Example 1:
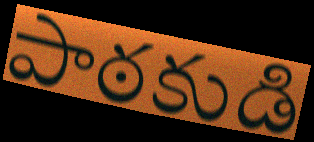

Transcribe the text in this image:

పాఠకుడి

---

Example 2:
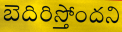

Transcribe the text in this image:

బెదిరిస్తోందని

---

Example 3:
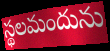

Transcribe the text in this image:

స్థలమందును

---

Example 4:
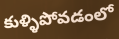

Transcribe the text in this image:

కుళ్ళిపోవడంలో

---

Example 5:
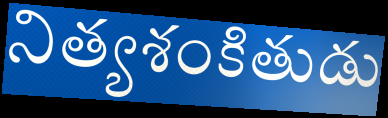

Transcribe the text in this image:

నిత్యశంకితుడు